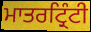
ਮਾਤਰਟ੍ਰਿੰਟੀ